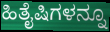
ಹಿತೈಷಿಗಳನ್ನೂ